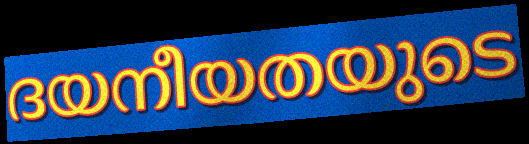
ദയനീയതയുടെ